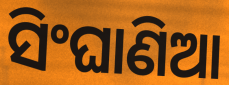
ସିଂଘାଣିଆ